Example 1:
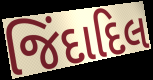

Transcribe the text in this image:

જિંદાદિલ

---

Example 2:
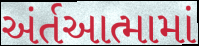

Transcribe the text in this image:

અંર્તઆત્મામાં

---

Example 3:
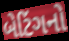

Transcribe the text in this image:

બેટિંગનો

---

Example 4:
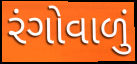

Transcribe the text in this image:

રંગોવાળું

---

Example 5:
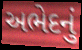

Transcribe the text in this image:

અભેદનું